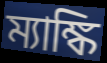
ম্যাঙ্কি